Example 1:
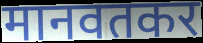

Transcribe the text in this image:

मानवतकर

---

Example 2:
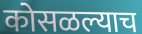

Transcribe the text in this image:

कोसळल्याच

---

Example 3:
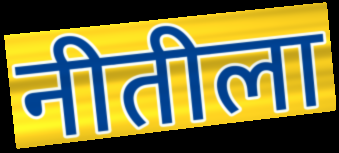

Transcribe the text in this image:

नीतीला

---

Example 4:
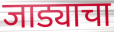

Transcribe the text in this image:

जाड्याचा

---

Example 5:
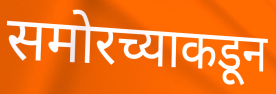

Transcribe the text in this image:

समोरच्याकडून